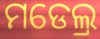
ମଡେଲ୍ର